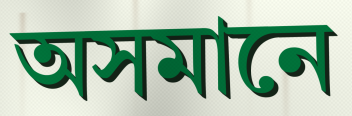
অসমানে